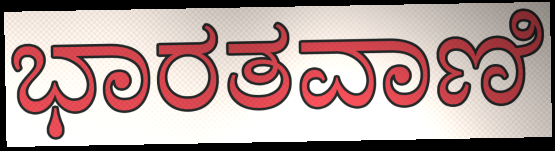
ಭಾರತವಾಣಿ